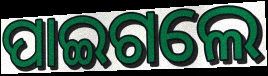
ପାଇଗଲେ